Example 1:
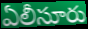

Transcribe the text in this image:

ఏలీసూరు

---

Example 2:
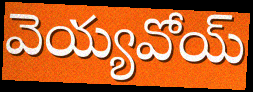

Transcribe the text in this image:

వెయ్యవోయ్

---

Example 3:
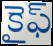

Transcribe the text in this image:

కైఫ్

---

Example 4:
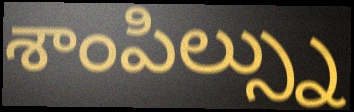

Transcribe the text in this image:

శాంపిల్స్ను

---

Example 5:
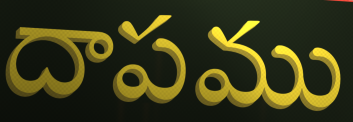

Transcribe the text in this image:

దాపము